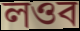
লওব